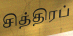
சித்திரப்